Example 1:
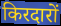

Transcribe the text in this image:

किरदारों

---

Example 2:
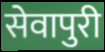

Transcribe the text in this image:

सेवापुरी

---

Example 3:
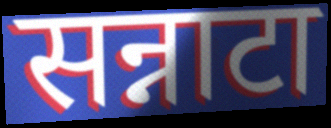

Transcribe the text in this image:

सन्नाटा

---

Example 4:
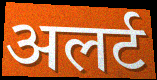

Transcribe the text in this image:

अलर्ट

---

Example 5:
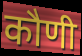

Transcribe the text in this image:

कौणी